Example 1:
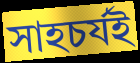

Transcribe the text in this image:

সাহচর্যই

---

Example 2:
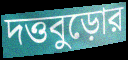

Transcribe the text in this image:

দত্তবুড়োর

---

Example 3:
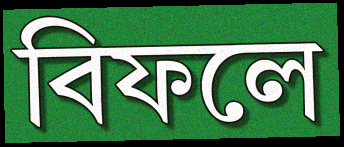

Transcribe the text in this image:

বিফলে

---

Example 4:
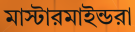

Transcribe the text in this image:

মাস্টারমাইন্ডরা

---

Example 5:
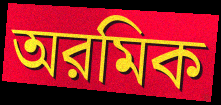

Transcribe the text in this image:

অরমিক